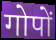
गोपों